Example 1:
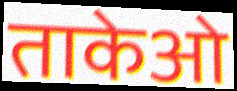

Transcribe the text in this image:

ताकेओ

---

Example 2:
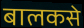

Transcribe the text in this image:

बालकसे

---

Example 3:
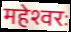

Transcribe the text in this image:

महेश्वरः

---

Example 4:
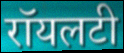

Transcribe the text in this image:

रॉयलटी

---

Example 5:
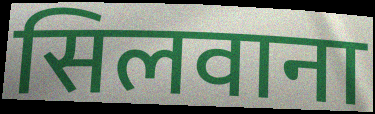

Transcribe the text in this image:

सिलवाना